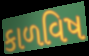
કાળવિષ